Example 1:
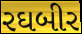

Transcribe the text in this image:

રઘબીર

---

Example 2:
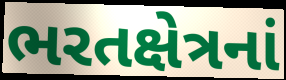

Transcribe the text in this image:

ભરતક્ષેત્રનાં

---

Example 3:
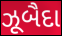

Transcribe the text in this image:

ઝૂબૈદા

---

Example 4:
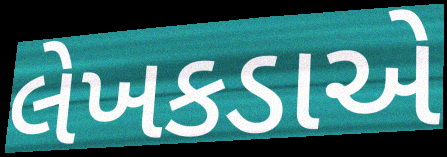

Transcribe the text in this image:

લેખકડાએ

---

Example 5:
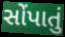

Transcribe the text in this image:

સોંપાતું